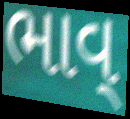
ભાવ્